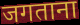
जगताना